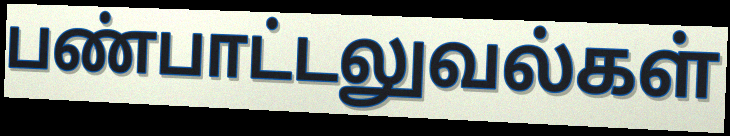
பண்பாட்டலுவல்கள்